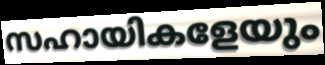
സഹായികളേയും